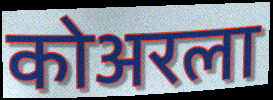
कोअरला